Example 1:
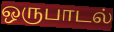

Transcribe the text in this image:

ஒருபாடல்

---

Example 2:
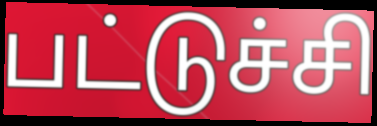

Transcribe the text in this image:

பட்டுச்சி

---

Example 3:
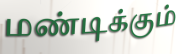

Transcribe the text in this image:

மண்டிக்கும்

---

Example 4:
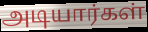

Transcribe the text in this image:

அடியார்கள்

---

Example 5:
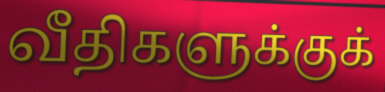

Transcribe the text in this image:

வீதிகளுக்குக்